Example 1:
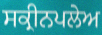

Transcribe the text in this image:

ਸਕ੍ਰੀਨਪਲੇਅ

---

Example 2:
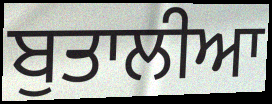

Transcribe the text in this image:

ਬੁਤਾਲੀਆ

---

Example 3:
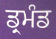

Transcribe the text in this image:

ਡ੍ਰਮੰਡ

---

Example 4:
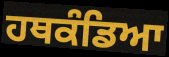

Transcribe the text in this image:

ਹਥਕੰਡਿਆ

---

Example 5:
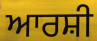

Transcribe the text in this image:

ਆਰਸ਼ੀ